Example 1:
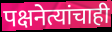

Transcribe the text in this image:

पक्षनेत्यांचाही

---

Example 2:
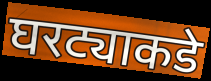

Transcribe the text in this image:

घरट्याकडे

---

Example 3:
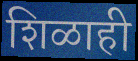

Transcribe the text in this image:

शिळाही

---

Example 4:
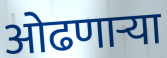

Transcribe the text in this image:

ओढणार्‍या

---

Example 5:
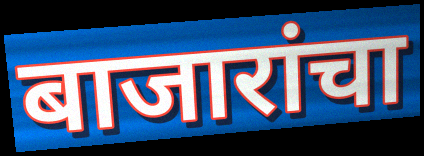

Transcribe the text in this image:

बाजारांचा